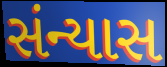
સંન્યાસ